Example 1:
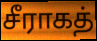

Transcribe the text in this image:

சீராகத்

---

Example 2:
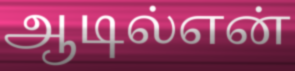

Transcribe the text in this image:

ஆடில்என்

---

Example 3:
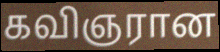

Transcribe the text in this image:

கவிஞரான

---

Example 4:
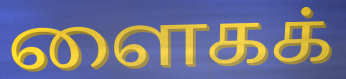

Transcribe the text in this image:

ளைகக்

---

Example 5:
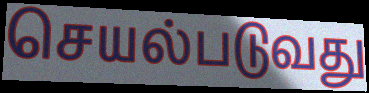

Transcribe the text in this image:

செயல்படுவது